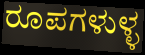
ರೂಪಗಳುಳ್ಳ